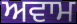
ਅਵਾਮ